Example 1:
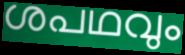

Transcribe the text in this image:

ശപഥവും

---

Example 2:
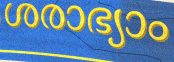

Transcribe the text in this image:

ശരാഭ്യാം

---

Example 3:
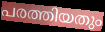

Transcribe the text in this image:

പരത്തിയതും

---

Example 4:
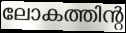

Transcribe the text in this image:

ലോകത്തിന്റ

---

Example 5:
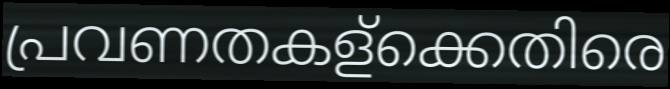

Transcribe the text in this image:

പ്രവണതകള്ക്കെതിരെ